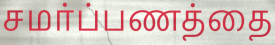
சமர்ப்பணத்தை